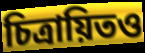
চিত্রায়িতও